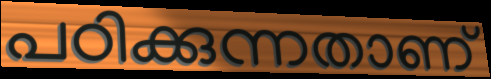
പഠിക്കുന്നതാണ്